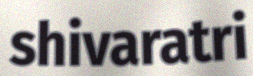
shivaratri